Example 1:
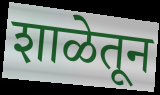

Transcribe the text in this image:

शाळेतून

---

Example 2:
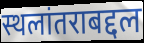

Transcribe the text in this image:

स्थलांतराबद्दल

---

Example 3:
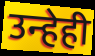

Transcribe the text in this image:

उन्हेही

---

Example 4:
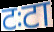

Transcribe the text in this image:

टःटा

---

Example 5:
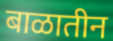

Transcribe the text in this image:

बाळातीन